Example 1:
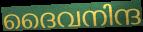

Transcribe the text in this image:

ദൈവനിന്ദ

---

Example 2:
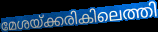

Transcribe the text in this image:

മേശയ്ക്കരികിലെത്തി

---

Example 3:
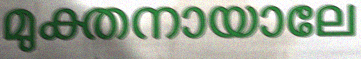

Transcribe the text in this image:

മുക്തനായാലേ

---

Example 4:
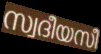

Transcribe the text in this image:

സ്വദീയസീ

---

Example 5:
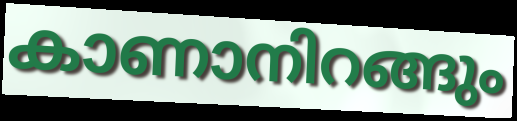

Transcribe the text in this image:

കാണാനിറങ്ങും